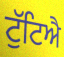
ਟੁੱਟਿਐ